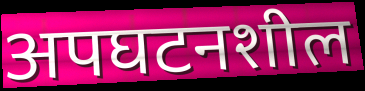
अपघटनशील